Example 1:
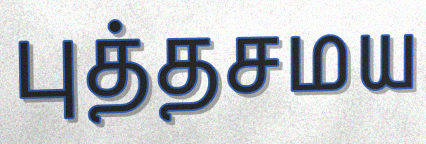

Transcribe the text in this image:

புத்தசமய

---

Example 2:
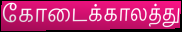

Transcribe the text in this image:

கோடைக்காலத்து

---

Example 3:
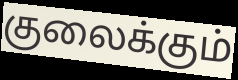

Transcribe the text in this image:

குலைக்கும்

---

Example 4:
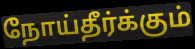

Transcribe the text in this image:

நோய்தீர்க்கும்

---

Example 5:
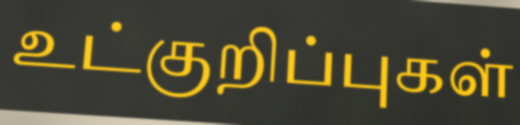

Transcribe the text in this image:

உட்குறிப்புகள்